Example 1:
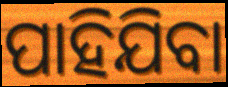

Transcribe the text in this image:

ପାହିଯିବା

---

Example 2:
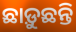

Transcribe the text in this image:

ଛାଡ଼ୁଛନ୍ତି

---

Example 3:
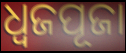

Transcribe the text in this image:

ଧ୍ୱଜପୂଜା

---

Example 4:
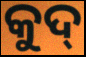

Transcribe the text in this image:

କୁଦ୍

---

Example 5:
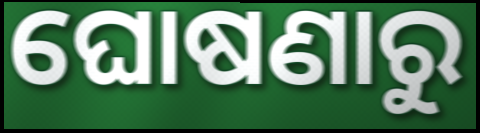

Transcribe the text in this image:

ଘୋଷଣାରୁ